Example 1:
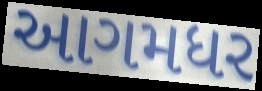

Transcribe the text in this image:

આગમધર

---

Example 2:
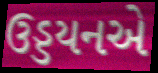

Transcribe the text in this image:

ઉડ્ડયનએ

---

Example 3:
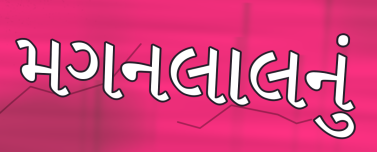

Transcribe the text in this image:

મગનલાલનું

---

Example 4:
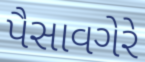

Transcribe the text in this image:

પૈસાવગેરે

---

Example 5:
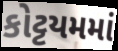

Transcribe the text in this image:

કોટ્ટયમમાં